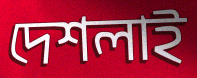
দেশলাই